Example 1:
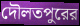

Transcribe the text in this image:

দৌলতপুরের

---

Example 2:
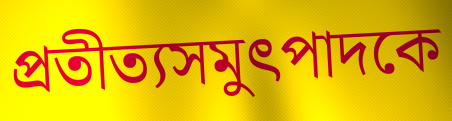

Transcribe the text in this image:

প্রতীত্যসমুৎপাদকে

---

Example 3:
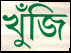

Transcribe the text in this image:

খুঁজি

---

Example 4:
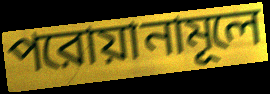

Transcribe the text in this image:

পরোয়ানামূলে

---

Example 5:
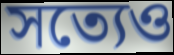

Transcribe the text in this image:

সত্যেও